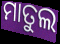
ମାତୁଲ